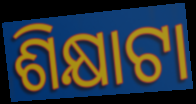
ଶିକ୍ଷାଟା